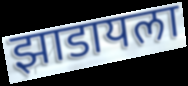
झाडायला